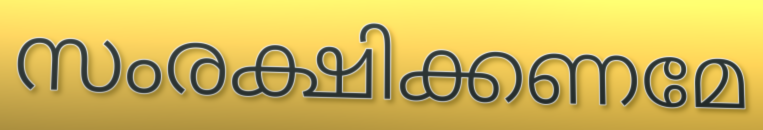
സംരക്ഷിക്കണമേ